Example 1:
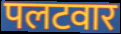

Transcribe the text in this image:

पलटवार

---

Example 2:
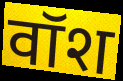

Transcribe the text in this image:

वॉश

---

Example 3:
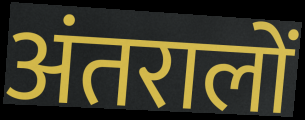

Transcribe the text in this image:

अंतरालों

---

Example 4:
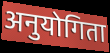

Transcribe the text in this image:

अनुयोगिता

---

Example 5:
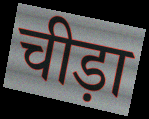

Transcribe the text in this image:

चीड़ा